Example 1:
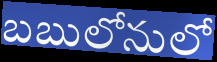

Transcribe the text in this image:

బబులోనులో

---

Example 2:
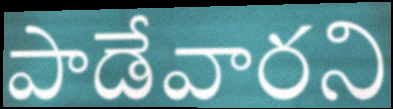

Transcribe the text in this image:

పాడేవారని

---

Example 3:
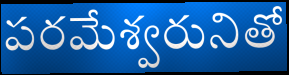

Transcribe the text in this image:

పరమేశ్వరునితో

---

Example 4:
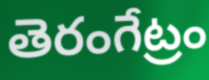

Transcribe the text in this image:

తెరంగేట్రం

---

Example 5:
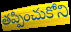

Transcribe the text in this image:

తప్పించుకోని